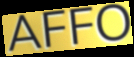
AFFO